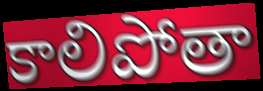
కాలిపోతా